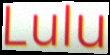
Lulu